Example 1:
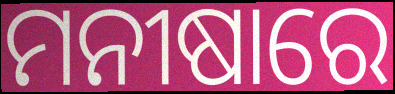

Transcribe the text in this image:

ମନୀଷାରେ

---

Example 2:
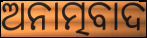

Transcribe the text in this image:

ଅନାତ୍ମବାଦ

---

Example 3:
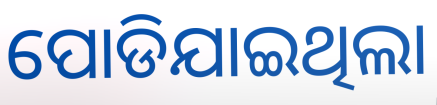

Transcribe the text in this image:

ପୋଡିଯାଇଥିଲା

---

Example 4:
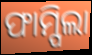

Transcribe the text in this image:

ଫାମ୍ପିଲା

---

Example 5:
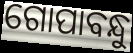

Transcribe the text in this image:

ଗୋପାବନ୍ଧୁ